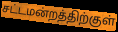
சட்டமன்றத்திற்குள்